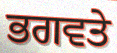
ਭਗਵਤੇ